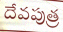
దేవపుత్ర